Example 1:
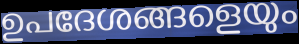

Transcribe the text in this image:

ഉപദേശങ്ങളെയും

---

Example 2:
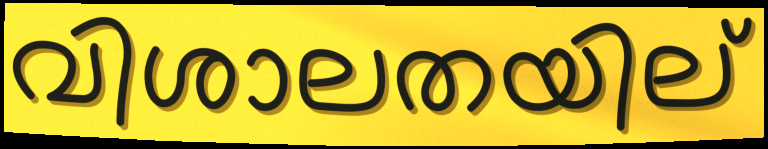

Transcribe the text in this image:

വിശാലതയില്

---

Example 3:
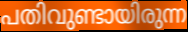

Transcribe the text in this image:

പതിവുണ്ടായിരുന്ന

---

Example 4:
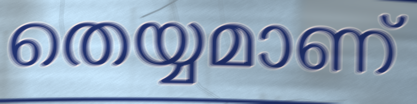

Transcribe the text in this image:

തെയ്യമാണ്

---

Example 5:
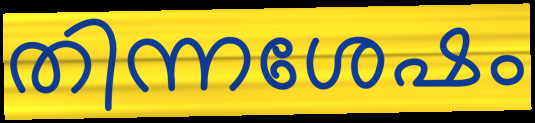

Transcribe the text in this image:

തിന്നശേഷം